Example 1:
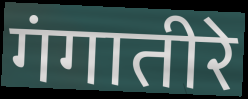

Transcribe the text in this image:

गंगातीरे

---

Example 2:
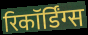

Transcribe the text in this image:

रिकॉर्डिंग्स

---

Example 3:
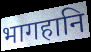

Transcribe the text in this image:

भागहानि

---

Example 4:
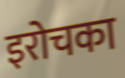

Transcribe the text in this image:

इरोचका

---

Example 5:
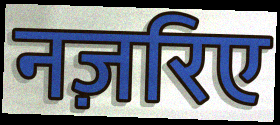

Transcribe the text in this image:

नज़रिए